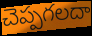
చెప్పగలదా